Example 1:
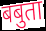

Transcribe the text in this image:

बबुता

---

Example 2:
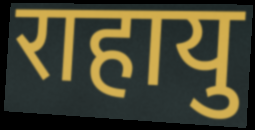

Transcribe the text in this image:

राहायु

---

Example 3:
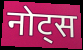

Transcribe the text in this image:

नोट्स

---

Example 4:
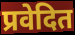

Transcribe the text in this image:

प्रवेदित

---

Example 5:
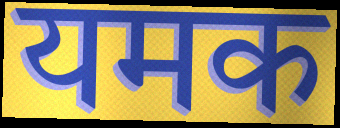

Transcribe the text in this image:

यमक